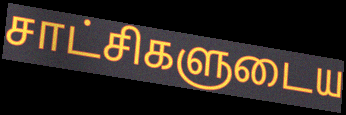
சாட்சிகளுடைய